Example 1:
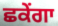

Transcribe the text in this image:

ਛਕੇਂਗਾ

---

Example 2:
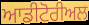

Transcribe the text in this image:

ਆਡੀਟੋਰੀਅਲ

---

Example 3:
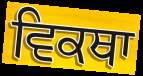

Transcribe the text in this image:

ਵਿਕਥਾ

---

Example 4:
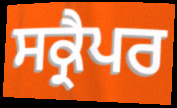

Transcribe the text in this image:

ਸਕ੍ਰੈਪਰ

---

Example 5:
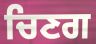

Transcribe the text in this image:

ਚਿਣਗ